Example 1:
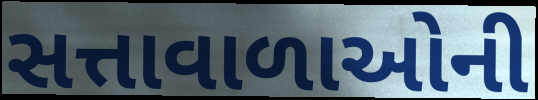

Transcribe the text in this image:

સત્તાવાળાઓની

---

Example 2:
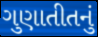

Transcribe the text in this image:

ગુણાતીતનું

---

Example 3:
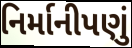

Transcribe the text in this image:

નિર્માનીપણું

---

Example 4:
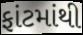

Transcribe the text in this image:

ફાંટમાંથી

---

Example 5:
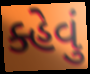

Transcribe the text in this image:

ક્હેવું